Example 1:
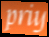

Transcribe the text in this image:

priy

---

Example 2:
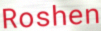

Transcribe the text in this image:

Roshen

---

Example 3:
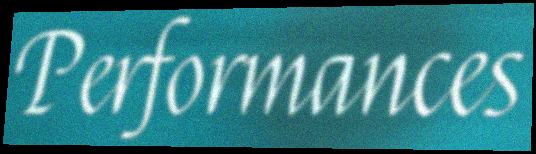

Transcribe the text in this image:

Performances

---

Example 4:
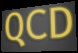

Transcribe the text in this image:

QCD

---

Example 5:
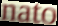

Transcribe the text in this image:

nato